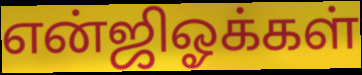
என்ஜிஓக்கள்